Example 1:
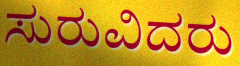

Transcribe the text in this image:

ಸುರುವಿದರು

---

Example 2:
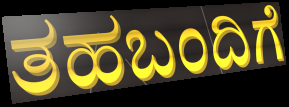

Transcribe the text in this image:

ತಹಬಂದಿಗೆ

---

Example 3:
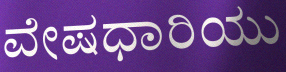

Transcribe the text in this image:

ವೇಷಧಾರಿಯು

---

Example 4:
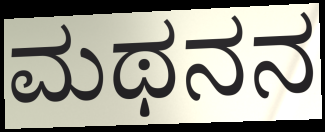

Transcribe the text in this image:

ಮಥನನ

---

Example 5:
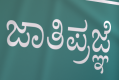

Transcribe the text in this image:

ಜಾತಿಪ್ರಜ್ಞೆ